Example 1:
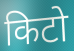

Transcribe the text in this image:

किटो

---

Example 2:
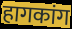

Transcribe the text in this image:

हागकांग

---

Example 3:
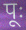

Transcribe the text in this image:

पूः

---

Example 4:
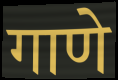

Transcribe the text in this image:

गाणे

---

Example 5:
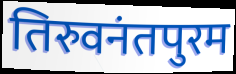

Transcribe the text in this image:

तिरुवनंतपुरम